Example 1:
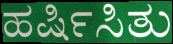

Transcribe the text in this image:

ಹರ್ಷಿಸಿತು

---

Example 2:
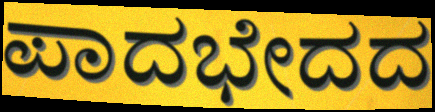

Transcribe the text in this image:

ಪಾದಭೇದದ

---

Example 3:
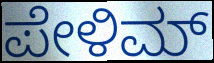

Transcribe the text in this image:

ಪೇಳಿಮ್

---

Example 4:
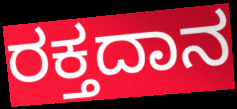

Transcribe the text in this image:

ರಕ್ತದಾನ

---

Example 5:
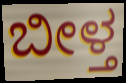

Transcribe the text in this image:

ಬೀಳ್ತ